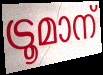
ട്രൂമാന്